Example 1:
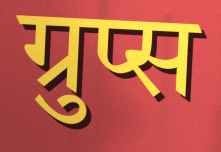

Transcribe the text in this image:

ग्रुप्स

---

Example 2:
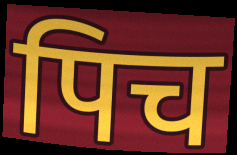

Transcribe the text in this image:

पिच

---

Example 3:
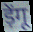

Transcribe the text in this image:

ड़ेंगू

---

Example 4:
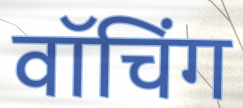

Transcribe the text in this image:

वॉचिंग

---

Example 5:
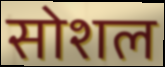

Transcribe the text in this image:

सोशल